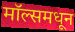
मॉल्समधून